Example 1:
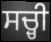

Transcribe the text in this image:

ਸਚ੍ਚੀ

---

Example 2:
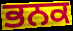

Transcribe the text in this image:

ਭਨਕ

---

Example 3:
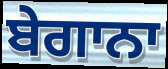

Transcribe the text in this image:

ਬੇਗਾਨਾ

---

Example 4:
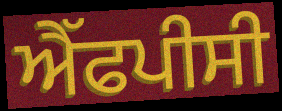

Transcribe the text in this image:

ਐੱਫਪੀਸੀ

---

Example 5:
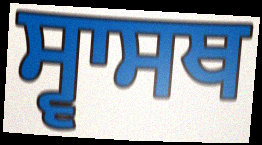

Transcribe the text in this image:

ਸ੍ਵਾਸਥ